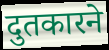
दुतकारने